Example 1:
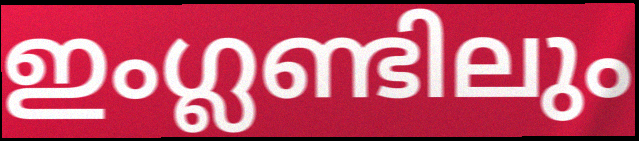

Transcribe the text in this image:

ഇംഗ്ലണ്ടിലും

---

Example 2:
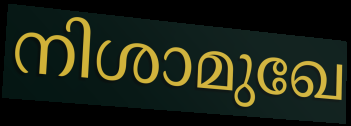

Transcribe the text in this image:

നിശാമുഖേ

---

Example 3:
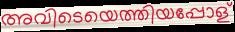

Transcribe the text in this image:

അവിടെയെത്തിയപ്പോള്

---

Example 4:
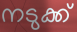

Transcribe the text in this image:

നടുക്ക്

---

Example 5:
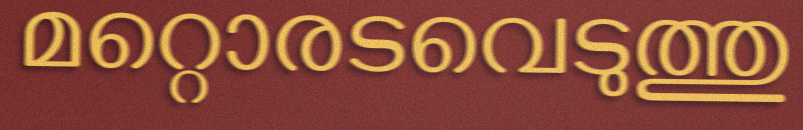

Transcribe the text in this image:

മറ്റൊരടവെടുത്തു